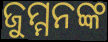
ଜୁମ୍ମନଙ୍କ